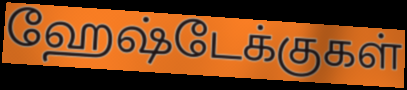
ஹேஷ்டேக்குகள்